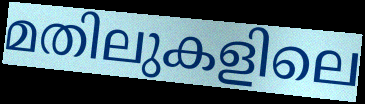
മതിലുകളിലെ